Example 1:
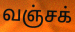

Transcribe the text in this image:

வஞ்சக்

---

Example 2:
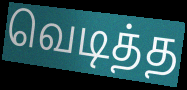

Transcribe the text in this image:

வெடித்த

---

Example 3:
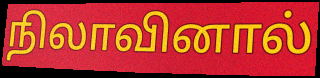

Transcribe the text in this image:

நிலாவினால்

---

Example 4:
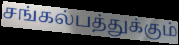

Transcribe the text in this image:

சங்கல்பத்துக்கும்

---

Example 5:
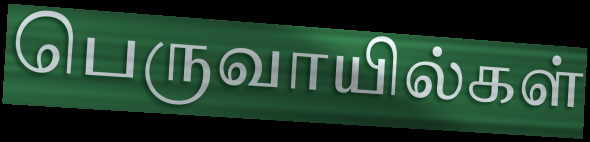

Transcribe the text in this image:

பெருவாயில்கள்